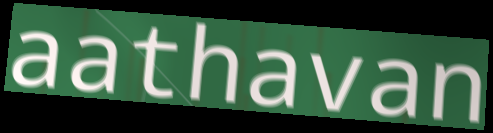
aathavan